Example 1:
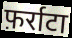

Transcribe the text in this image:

फ़र्राटा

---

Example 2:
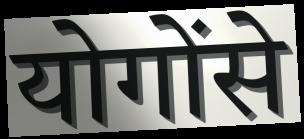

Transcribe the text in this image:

योगोंसे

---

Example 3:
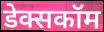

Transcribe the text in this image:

डेक्सकॉम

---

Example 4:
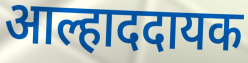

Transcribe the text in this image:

आल्हाददायक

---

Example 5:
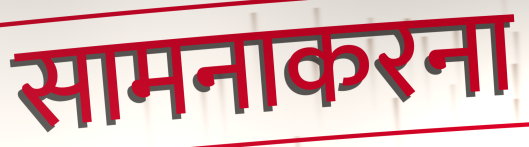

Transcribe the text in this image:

सामनाकरना